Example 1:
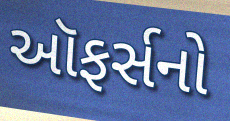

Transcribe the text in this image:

ઑફર્સનો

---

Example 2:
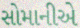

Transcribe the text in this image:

સોમાનીએ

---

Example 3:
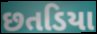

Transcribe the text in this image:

છતડિયા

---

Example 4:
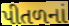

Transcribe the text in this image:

પીતળનાં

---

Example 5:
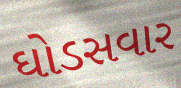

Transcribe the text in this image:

ઘોડસવાર